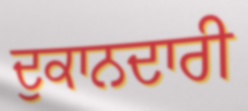
ਦੁਕਾਨਦਾਰੀ